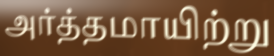
அர்த்தமாயிற்று